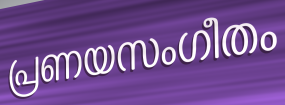
പ്രണയസംഗീതം